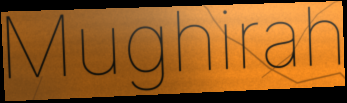
Mughirah